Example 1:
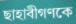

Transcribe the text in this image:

ছাহাবীগণকে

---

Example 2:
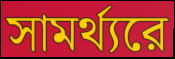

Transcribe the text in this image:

সামর্থ্যরে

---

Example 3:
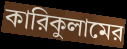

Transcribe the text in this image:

কারিকুলামের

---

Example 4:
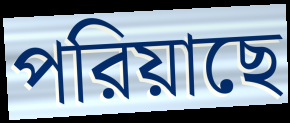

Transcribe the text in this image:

পরিয়াছে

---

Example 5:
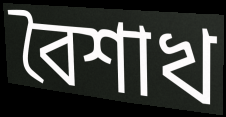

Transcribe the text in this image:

বৈশাখ